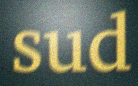
sud